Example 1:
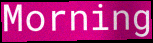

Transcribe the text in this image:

Morning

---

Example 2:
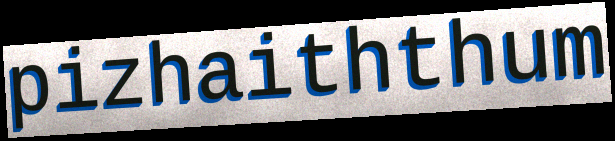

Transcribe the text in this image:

pizhaiththum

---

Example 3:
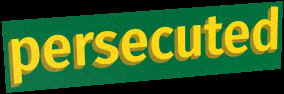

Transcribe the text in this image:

persecuted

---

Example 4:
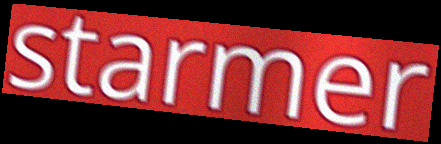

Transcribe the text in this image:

starmer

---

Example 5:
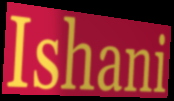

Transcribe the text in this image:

Ishani